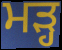
ਮੜ੍ਹ